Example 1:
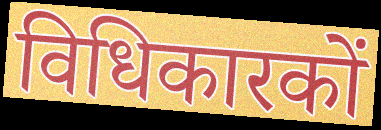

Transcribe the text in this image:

विधिकारकों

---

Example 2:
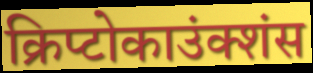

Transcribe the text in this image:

क्रिप्टोकाउंक्शंस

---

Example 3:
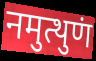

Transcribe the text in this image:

नमुत्थुणं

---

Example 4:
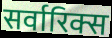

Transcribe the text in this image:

सर्वारिक्स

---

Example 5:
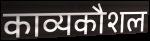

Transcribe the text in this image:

काव्यकौशल